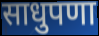
साधुपणा